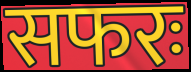
सफरः